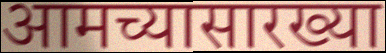
आमच्यासारख्या